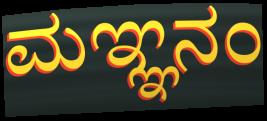
ಮಞ್ಞನಂ